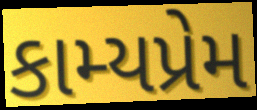
કામ્યપ્રેમ